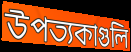
উপত্যকাগুলি